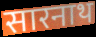
सारनाथ